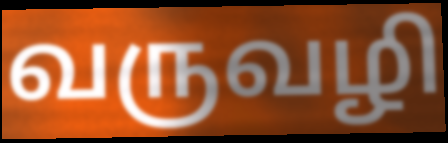
வருவழி